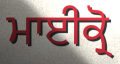
ਮਾਈਕ੍ਰੋ